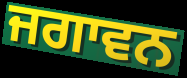
ਜਗਾਵਨ